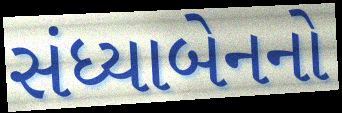
સંધ્યાબેનનો